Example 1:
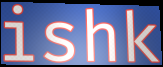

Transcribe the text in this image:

ishk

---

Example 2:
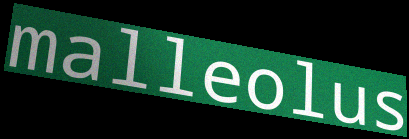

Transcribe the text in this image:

malleolus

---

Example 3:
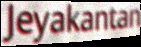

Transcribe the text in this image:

Jeyakantan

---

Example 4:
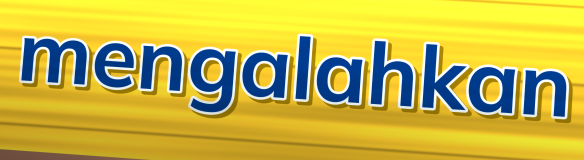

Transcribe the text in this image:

mengalahkan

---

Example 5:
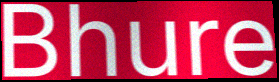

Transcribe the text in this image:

Bhure